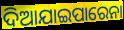
ଦିଆଯାଇପାରେନା